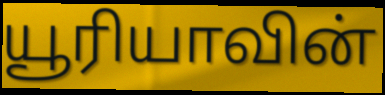
யூரியாவின்